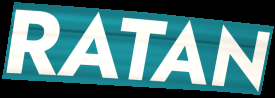
RATAN